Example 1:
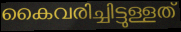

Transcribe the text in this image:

കൈവരിച്ചിട്ടുള്ളത്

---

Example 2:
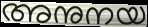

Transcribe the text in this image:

അനുനയ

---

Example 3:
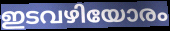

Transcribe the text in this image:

ഇടവഴിയോരം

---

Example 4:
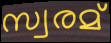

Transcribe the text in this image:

സ്വരമ്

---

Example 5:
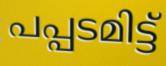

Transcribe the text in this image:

പപ്പടമിട്ട്